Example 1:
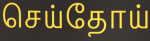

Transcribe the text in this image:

செய்தோய்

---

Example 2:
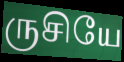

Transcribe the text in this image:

ருசியே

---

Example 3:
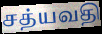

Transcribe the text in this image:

சத்யவதி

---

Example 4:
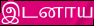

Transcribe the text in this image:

இடனாய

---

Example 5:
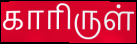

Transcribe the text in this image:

காரிருள்